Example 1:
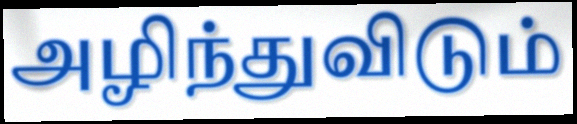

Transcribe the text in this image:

அழிந்துவிடும்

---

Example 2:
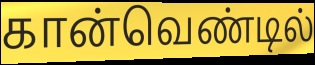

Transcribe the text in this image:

கான்வெண்டில்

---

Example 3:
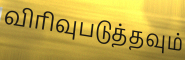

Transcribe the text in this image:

விரிவுபடுத்தவும்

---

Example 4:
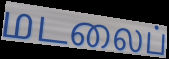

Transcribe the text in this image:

மடலைப்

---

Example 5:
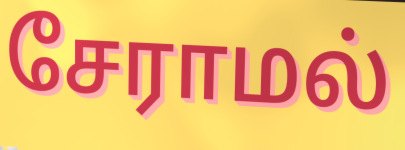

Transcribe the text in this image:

சேராமல்